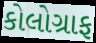
કોલોગ્રાફ